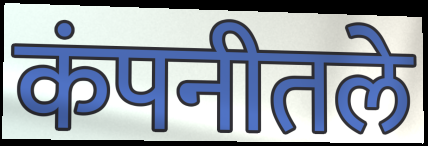
कंपनीतले